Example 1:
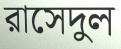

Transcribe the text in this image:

রাসেদুল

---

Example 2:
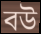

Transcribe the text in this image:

বউ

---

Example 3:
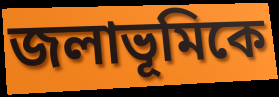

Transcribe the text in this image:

জলাভূমিকে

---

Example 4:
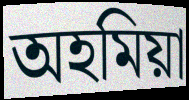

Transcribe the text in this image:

অহমিয়া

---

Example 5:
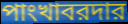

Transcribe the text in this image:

পাংখাবরদার